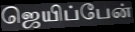
ஜெயிப்பேன்